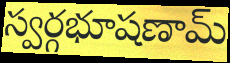
స్వర్గభూషణామ్